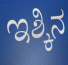
ಇಶ್ಕಿನ